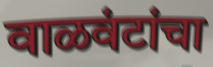
वाळवंटांचा